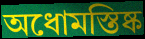
অধোমস্তিষ্ক